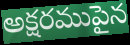
అక్షరముపైన